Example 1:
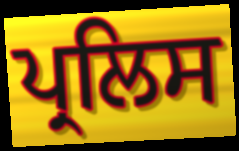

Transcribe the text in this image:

ਪ੍ਰਲਿਸ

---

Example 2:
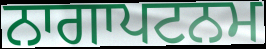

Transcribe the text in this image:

ਨਾਗਾਪਟਨਮ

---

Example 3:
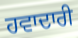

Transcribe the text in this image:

ਹਵਾਦਾਰੀ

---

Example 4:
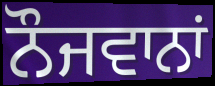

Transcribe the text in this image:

ਨੌਜਵਾਨਾਂ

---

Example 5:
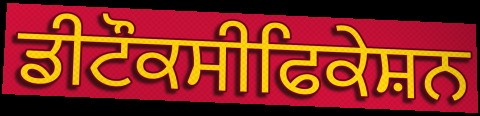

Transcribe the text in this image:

ਡੀਟੌਕਸੀਫਿਕੇਸ਼ਨ